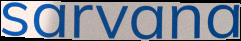
sarvana